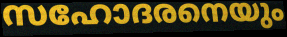
സഹോദരനെയും